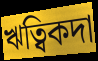
ঋত্বিকদা